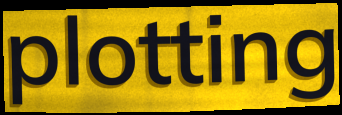
plotting